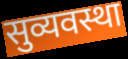
सुव्यवस्था